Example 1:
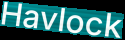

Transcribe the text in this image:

Havlock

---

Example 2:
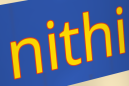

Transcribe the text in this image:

nithi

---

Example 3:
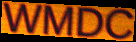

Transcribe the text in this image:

WMDC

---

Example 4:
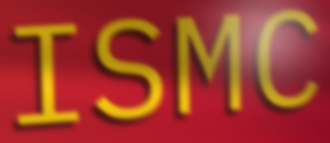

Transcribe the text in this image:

ISMC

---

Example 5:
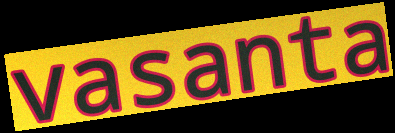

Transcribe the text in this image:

vasanta